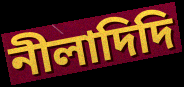
নীলাদিদি